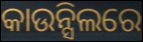
କାଉନ୍ସିଲରେ